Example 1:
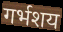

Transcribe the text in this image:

गर्भशय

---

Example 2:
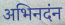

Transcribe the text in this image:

अभिनदंन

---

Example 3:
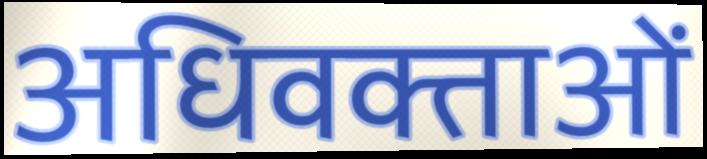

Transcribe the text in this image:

अधिवक्ताओं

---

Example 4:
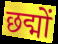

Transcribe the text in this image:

छद्मों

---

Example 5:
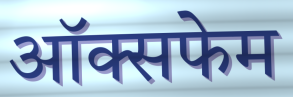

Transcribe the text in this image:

ऑक्सफेम